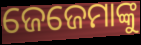
ଜେଜେମାଙ୍କୁ